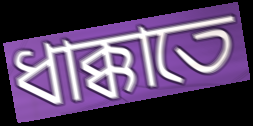
ধাক্কাতে